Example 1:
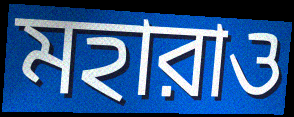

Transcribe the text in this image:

মহারাও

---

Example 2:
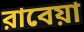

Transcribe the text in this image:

রাবেয়া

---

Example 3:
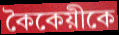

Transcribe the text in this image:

কৈকেয়ীকে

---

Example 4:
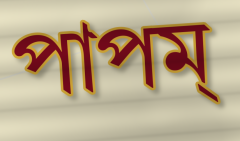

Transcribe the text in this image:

পাপম্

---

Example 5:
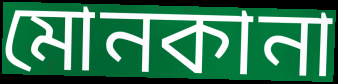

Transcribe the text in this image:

মোনকানা